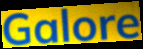
Galore